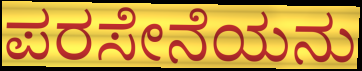
ಪರಸೇನೆಯನು